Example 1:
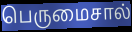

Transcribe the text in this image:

பெருமைசால்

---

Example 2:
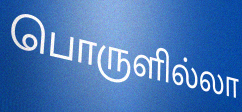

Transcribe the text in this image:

பொருளில்லா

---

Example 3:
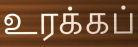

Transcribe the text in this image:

உரக்கப்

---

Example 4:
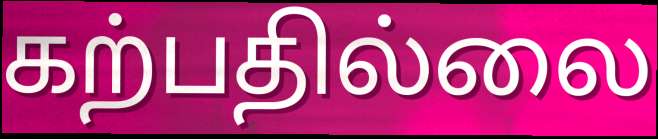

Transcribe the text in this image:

கற்பதில்லை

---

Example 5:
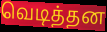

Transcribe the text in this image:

வெடித்தன